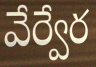
వేర్వేర